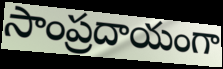
సాంప్రదాయంగా